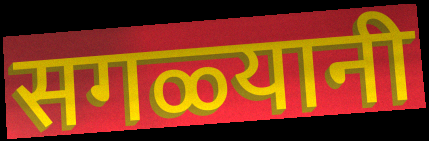
सगळ्यानी